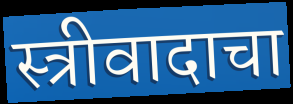
स्त्रीवादाचा